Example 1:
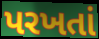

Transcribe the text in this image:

પરખતાં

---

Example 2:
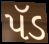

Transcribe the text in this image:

પૅડ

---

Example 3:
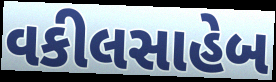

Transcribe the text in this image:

વકીલસાહેબ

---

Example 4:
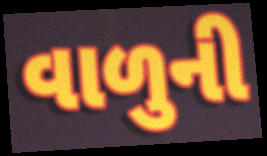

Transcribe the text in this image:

વાળુની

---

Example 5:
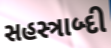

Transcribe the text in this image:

સહસ્ત્રાબ્દી